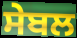
ਸੇਬਲ